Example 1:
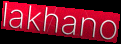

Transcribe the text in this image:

lakhano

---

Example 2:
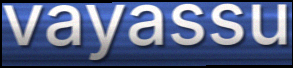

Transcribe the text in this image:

vayassu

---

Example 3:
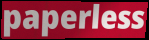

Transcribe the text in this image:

paperless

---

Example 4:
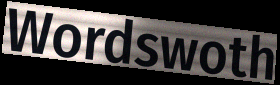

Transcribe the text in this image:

Wordswoth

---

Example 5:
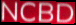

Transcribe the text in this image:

NCBD